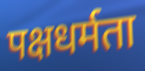
पक्षधर्मता